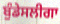
ਬੁੰਡੇਸਲੀਗਾ